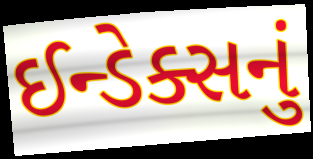
ઈન્ડેક્સનું